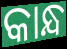
କାନ୍ଧ